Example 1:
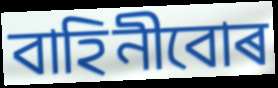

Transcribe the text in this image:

বাহিনীবোৰ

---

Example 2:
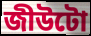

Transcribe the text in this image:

জীউটো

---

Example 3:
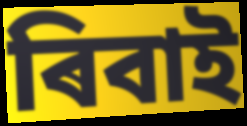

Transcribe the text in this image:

ৰিবাই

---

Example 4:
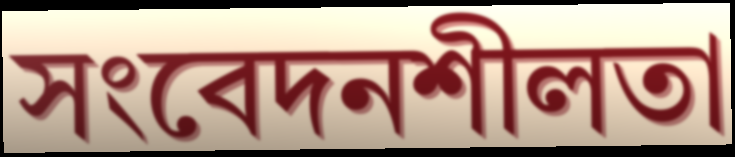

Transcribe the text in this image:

সংবেদনশীলতা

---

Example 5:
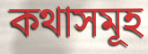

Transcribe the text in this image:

কথাসমূহ